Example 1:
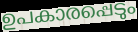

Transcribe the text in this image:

ഉപകാരപ്പെടും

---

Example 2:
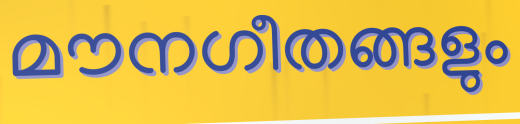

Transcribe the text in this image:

മൗനഗീതങ്ങളും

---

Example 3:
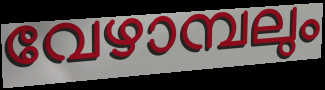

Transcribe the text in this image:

വേഴാമ്പലും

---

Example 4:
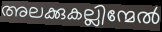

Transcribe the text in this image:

അലക്കുകല്ലിന്മേൽ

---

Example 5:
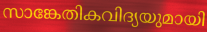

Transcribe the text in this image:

സാങ്കേതികവിദ്യയുമായി